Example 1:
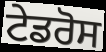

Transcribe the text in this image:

ਟੇਡਰੋਸ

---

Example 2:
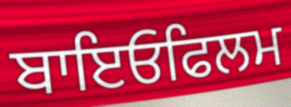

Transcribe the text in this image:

ਬਾਇਓਫਿਲਮ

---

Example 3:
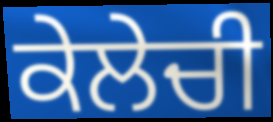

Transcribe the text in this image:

ਕੇਲੇਚੀ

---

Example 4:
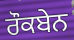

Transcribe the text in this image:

ਰੌਕਬੇਨ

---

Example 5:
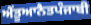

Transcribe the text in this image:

ਐਂਤੂਆਨੈਤਪੰਜਾਬੀ